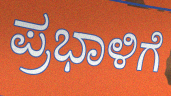
ಪ್ರಭಾಳಿಗೆ